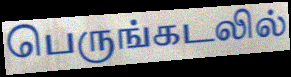
பெருங்கடலில்